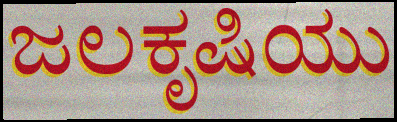
ಜಲಕೃಷಿಯು